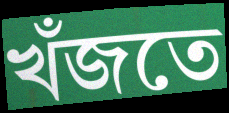
খঁজতে